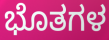
ಭೊತಗಳ